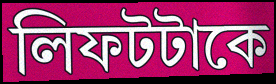
লিফটটাকে